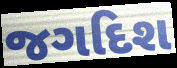
જગદિશ